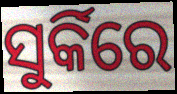
ସୁର୍କିରେ